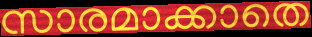
സാരമാക്കാതെ